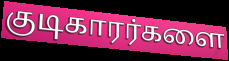
குடிகாரர்களை